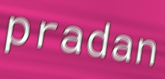
pradan